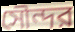
সৌন্দর